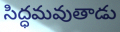
సిద్ధమవుతాడు